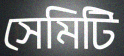
সেমিটি